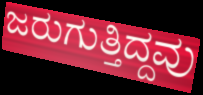
ಜರುಗುತ್ತಿದ್ದವು